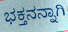
ಭಕ್ತನನ್ನಾಗಿ